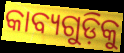
କାବ୍ୟଗୁଡ଼ିକୁ